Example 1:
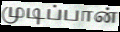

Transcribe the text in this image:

முடிப்பான்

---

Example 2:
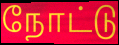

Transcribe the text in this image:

நோட்டு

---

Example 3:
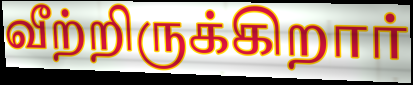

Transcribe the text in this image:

வீற்றிருக்கிறார்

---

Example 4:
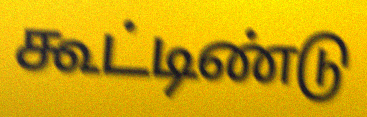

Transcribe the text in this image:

கூட்டிண்டு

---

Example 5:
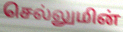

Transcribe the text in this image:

செல்லுமின்